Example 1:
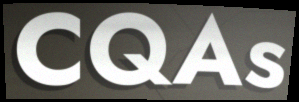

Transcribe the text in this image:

CQAs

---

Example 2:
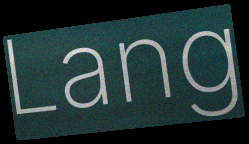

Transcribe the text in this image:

Lang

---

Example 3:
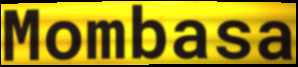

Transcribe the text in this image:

Mombasa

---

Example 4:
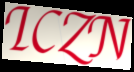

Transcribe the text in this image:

ICZN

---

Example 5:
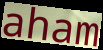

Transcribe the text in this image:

aham